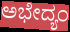
ಅಭೇದ್ಯಂ